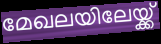
മേഖലയിലേയ്ക്ക്